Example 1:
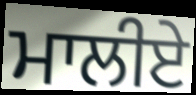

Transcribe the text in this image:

ਮਾਲੀਏ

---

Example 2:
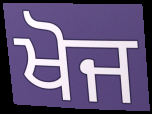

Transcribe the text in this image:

ਖੋਜ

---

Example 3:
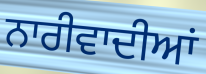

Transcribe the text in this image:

ਨਾਰੀਵਾਦੀਆਂ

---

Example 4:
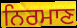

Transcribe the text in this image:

ਨਿਰਮਾਣ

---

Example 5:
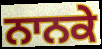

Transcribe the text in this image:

ਨਾਨਕੇ